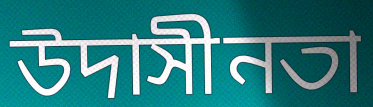
উদাসীনতা